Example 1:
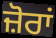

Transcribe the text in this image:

ਜ਼ੋਰਾਂ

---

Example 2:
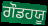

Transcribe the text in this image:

ਗੌਡਹਯੂ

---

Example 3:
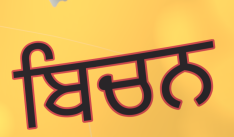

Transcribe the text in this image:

ਬਿਚਨ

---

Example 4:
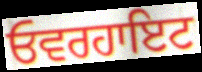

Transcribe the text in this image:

ਓਵਰਹਾਇਟ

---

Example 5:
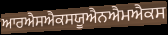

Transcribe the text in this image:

ਆਰਐਸਐਕਸਯੂਐਨਐਮਐਕਸ